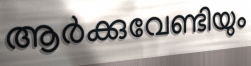
ആർക്കുവേണ്ടിയും